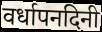
वर्धापनदिनी